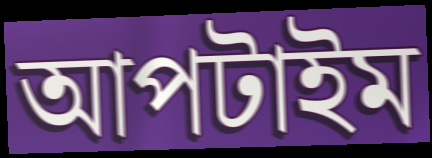
আপটাইম